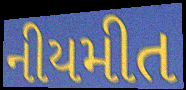
નીયમીત